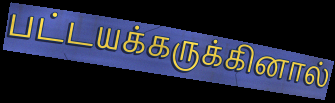
பட்டயக்கருக்கினால்